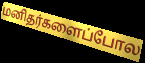
மனிதர்களைப்போல